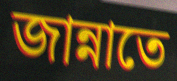
জান্নাতে